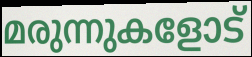
മരുന്നുകളോട്